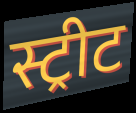
स्ट्रीट